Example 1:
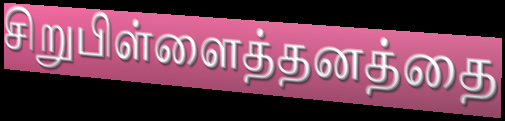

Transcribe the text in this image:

சிறுபிள்ளைத்தனத்தை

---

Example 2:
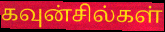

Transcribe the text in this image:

கவுன்சில்கள்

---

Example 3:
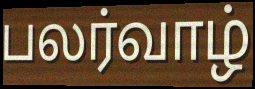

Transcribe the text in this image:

பலர்வாழ்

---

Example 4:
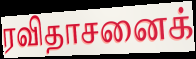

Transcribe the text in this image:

ரவிதாசனைக்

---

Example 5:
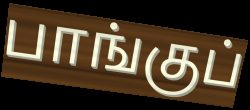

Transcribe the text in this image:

பாங்குப்